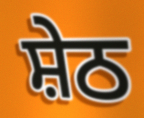
ਸ਼ੇਠ